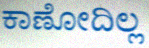
ಕಾಣೋದಿಲ್ಲ